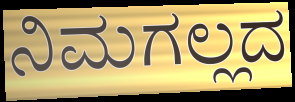
ನಿಮಗಲ್ಲದ